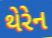
થેરેન